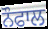
ਨੌਫਾਲ